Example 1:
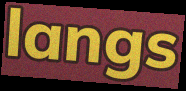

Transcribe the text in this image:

langs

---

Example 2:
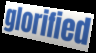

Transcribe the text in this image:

glorified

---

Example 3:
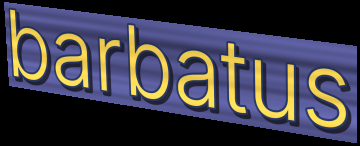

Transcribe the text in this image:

barbatus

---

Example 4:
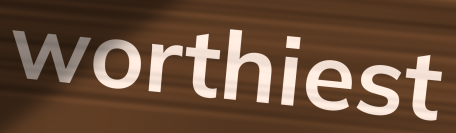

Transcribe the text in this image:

worthiest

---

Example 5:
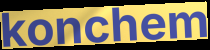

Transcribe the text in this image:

konchem